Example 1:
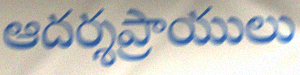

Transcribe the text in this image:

ఆదర్శప్రాయులు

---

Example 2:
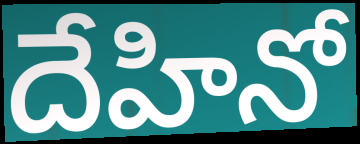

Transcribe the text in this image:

దేహినో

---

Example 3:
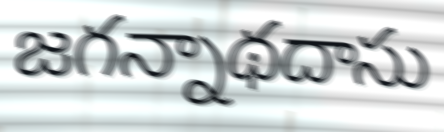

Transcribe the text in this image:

జగన్నాథదాసు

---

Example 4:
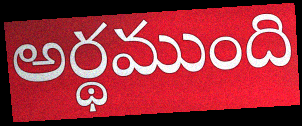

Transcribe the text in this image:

అర్థముంది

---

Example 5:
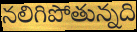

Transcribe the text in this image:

నలిగిపోతున్నది